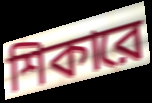
শিকারে